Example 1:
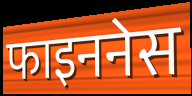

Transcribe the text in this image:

फाइननेस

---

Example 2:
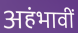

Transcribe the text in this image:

अहंभावीं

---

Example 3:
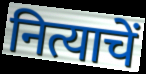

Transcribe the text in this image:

नित्याचें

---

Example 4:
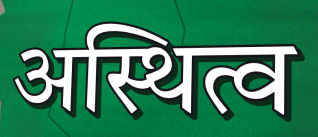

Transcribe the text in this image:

अस्थित्व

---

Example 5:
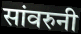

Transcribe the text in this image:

सांवरुनी